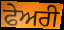
ਫੇਅਰੀ